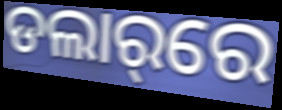
ଡଲାର୍‌ରେ